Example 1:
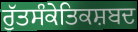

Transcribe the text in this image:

ਰੁੱਤਸੰਕੇਤਿਕਸ਼ਬਦ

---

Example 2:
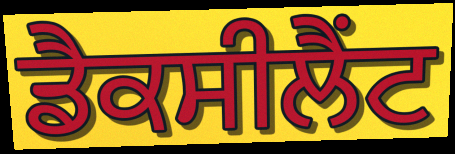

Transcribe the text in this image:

ਡੈਕਸੀਲੈਂਟ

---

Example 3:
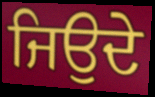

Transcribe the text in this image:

ਜਿਉਦੇ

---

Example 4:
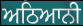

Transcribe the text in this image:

ਅਠਿਆਨੀ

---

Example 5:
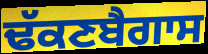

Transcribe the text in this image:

ਢੱਕਣਬੈਗਾਸ